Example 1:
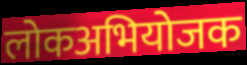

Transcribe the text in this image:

लोकअभियोजक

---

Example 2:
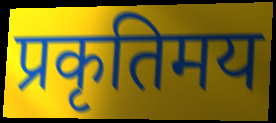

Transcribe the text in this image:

प्रकृतिमय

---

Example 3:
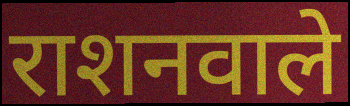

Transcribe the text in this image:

राशनवाले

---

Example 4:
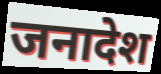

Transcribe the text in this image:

जनादेश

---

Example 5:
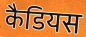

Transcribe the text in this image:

कैडियस